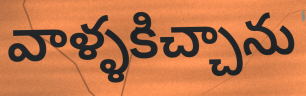
వాళ్ళకిచ్చాను